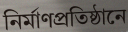
নির্মাণপ্রতিষ্ঠানে